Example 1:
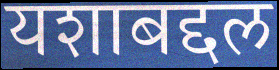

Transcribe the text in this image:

यशाबद्दल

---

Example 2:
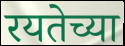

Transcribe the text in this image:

रयतेच्या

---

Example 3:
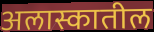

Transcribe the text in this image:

अलास्कातील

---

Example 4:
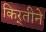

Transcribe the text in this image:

किर्तीने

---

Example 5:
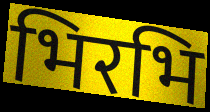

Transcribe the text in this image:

भिरभि